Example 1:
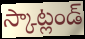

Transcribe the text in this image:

స్కాట్లండ్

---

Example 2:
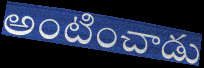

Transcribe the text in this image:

అంటించాడు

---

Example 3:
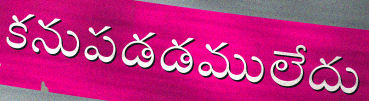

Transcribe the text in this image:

కనుపడడములేదు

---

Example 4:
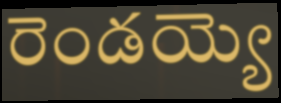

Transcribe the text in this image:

రెండయ్యె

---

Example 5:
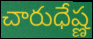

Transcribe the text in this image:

చారుధేష్ణ